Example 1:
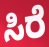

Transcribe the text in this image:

ಸಿರೆ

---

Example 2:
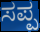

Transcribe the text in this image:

ಸಪ್ಪ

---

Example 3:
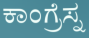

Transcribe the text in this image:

ಕಾಂಗ್ರೆಸ್ನ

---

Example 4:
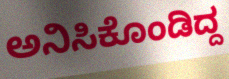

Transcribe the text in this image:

ಅನಿಸಿಕೊಂಡಿದ್ದ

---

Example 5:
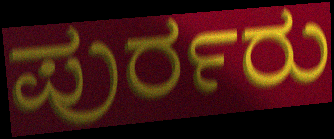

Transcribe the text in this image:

ಪುರ್ರರು